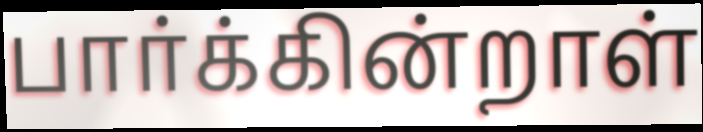
பார்க்கின்றாள்